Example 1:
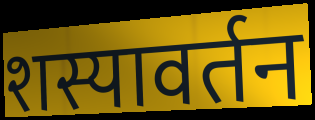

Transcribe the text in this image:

शस्यावर्तन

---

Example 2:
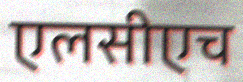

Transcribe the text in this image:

एलसीएच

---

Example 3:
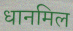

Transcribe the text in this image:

धानमिल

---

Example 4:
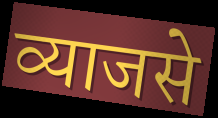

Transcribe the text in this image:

व्याजसे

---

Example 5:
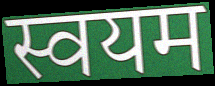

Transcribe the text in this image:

स्वयम